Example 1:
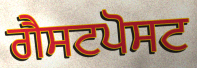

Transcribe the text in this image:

ਗੈਸਟਪੋਸਟ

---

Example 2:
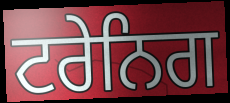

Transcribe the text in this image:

ਟਰੇਨਿਗ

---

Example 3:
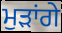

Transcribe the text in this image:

ਮੁੜਾਂਗੇ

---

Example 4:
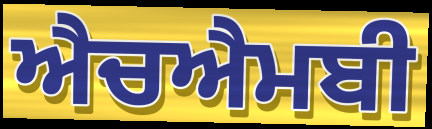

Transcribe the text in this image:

ਐਚਐਮਬੀ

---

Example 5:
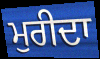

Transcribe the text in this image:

ਮੁਰੀਦਾ